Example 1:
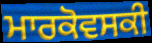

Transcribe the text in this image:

ਮਾਰਕੋਵਸਕੀ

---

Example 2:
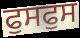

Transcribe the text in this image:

ਫੁਸਫੁਸ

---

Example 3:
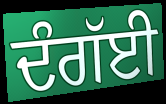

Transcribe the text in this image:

ਦੰਗੱਈ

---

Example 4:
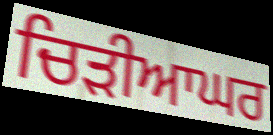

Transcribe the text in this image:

ਚਿੜੀਆਘਰ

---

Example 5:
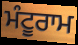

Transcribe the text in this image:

ਮੰਟੂਰਾਮ